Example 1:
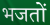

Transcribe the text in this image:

भजतों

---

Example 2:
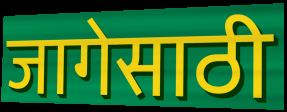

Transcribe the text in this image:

जागेसाठी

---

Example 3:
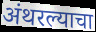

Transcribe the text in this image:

अंथरल्याचा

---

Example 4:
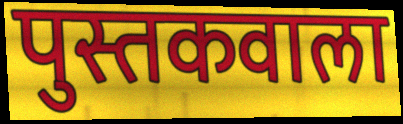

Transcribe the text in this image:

पुस्तकवाला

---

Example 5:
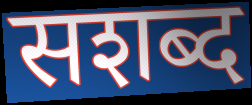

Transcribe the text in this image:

सशब्द